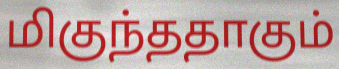
மிகுந்ததாகும்